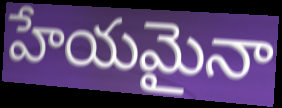
హేయమైనా